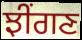
ਝੀਂਗਣ